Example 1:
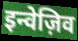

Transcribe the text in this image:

इन्वेज़िव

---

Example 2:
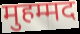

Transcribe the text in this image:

मुहम्‍मद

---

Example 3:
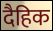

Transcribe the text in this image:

दैहिक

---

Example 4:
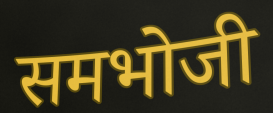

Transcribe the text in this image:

समभोजी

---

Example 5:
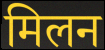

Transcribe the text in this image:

मिलन